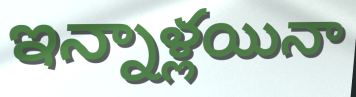
ఇన్నాళ్లయినా